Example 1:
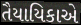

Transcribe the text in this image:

તૈયાયિકાએ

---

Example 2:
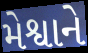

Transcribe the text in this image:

મેશ્વાને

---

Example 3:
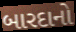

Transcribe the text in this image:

બારદાનો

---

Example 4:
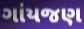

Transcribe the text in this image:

ગાંયજણ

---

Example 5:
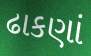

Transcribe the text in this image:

ઢાકણાં